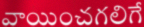
వాయించగలిగే